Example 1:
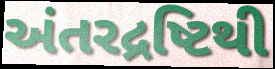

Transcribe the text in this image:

અંતરદ્રષ્ટિથી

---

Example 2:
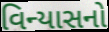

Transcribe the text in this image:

વિન્યાસનો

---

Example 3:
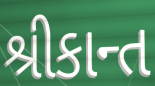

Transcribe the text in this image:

શ્રીકાન્ત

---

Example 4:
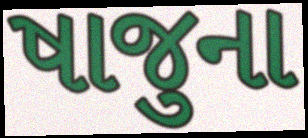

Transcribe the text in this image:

ષાજુના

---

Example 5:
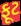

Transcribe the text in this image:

ફૂટ